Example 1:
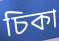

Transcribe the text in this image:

চিকা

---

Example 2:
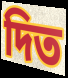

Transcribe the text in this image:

দিত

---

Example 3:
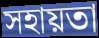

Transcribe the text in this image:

সহায়তা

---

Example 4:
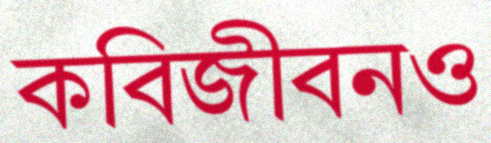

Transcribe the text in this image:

কবিজীবনও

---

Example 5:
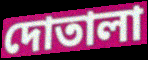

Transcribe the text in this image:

দোতালা